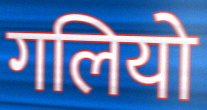
गलियो